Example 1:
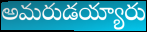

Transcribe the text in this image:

అమరుడయ్యారు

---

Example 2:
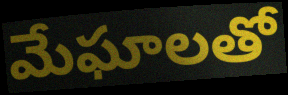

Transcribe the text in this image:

మేఘాలతో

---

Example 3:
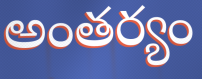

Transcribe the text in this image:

అంతర్యం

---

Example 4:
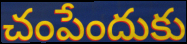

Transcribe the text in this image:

చంపేందుకు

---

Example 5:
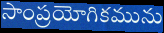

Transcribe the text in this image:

సాంప్రయోగికమును